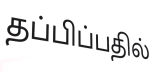
தப்பிப்பதில்